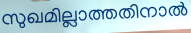
സുഖമില്ലാത്തതിനാൽ